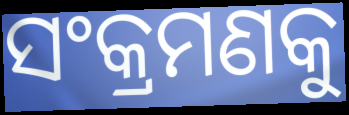
ସଂକ୍ରମଣକୁ